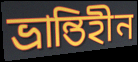
ভ্রান্তিহীন